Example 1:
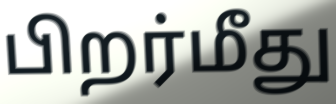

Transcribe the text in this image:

பிறர்மீது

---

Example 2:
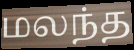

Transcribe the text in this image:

மலந்த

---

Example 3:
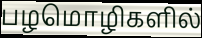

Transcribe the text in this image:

பழமொழிகளில்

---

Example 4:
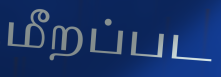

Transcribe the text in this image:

மீறப்பட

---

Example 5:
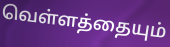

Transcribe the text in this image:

வெள்ளத்தையும்